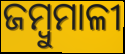
ଜମ୍ବୁମାଳୀ